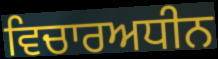
ਵਿਚਾਰਅਧੀਨ